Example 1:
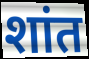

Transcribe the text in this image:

शांत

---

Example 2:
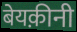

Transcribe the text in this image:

बेयक़ीनी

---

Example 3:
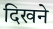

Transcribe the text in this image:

दिखने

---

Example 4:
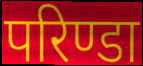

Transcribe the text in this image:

परिण्डा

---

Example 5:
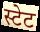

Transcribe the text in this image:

स्टेट